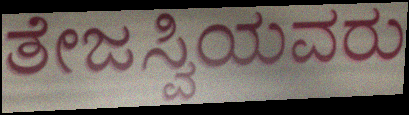
ತೇಜಸ್ವಿಯವರು